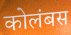
कोलंबस